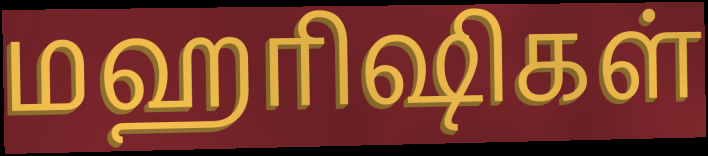
மஹரிஷிகள்